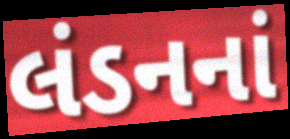
લંડનનાં